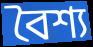
বৈশ্য